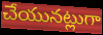
చేయునట్లుగా